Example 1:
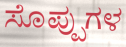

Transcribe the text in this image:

ಸೊಪ್ಪುಗಳ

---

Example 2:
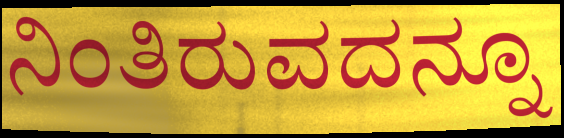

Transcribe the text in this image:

ನಿಂತಿರುವದನ್ನೂ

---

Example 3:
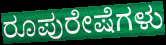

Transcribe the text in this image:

ರೂಪುರೇಷೆಗಳು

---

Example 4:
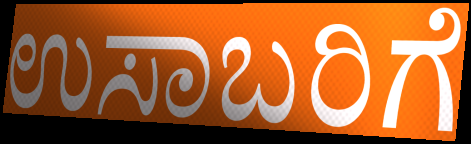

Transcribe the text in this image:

ಉಸಾಬರಿಗೆ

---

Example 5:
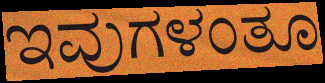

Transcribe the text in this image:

ಇವುಗಳಂತೂ